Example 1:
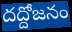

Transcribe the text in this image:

దద్దోజనం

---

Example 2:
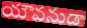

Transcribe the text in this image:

యౌవనుడా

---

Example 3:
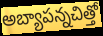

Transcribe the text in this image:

అబ్యాపన్నచిత్తో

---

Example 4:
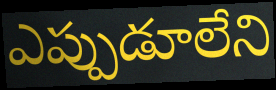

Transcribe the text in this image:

ఎప్పుడూలేని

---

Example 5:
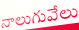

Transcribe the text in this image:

నాలుగువేలు